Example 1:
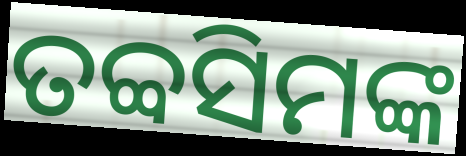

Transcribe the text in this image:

ତବ୍ବସିମଙ୍କ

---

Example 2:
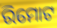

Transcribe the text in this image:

ରିମୋଟ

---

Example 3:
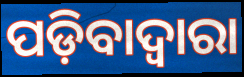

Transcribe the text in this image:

ପଡ଼ିବାଦ୍ୱାରା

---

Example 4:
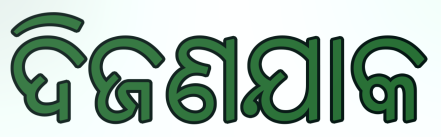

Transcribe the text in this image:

ଦିଜଣଯାକ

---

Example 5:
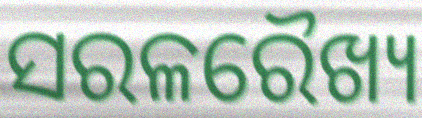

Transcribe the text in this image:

ସରଳରୈଖ୍ୟ